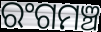
ରଂଗମଞ୍ଚ